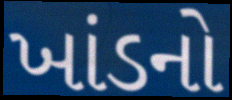
ખાંડનો